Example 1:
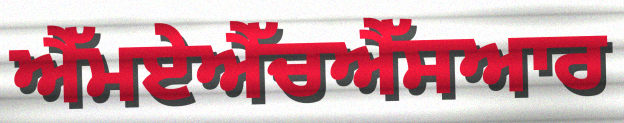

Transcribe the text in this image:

ਐੱਮਏਐੱਚਐੱਸਆਰ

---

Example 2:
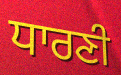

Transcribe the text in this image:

ਧਾਰਣੀ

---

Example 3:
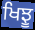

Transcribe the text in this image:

ਖਿਝੂ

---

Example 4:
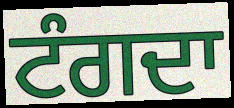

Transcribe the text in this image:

ਟੰਗਦਾ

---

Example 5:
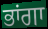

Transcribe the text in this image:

ਭਾਂਗਾ